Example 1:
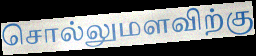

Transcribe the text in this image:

சொல்லுமளவிற்கு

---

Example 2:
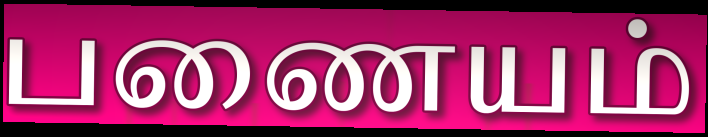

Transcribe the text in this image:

பணையம்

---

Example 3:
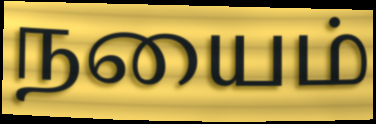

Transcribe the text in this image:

நயைம்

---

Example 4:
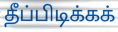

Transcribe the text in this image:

தீப்பிடிக்கக்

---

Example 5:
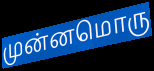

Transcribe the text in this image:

முன்னமொரு